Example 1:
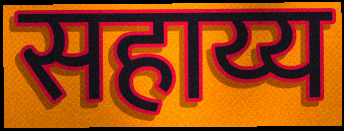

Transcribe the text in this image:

सहाय्य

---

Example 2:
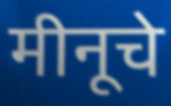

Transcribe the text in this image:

मीनूचे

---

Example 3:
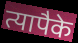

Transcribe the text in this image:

त्यापैके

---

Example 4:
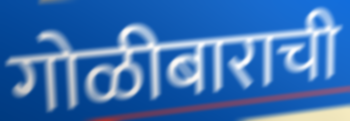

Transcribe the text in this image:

गोळीबाराची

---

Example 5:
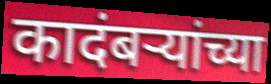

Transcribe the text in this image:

कादंबर्‍यांच्या